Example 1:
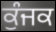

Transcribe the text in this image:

ਕੁੰਜਕ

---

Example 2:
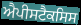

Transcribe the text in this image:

ਐਪੀਸਟੈਕਸਿਸ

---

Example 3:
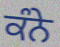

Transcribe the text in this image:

ਕੰਨੇ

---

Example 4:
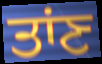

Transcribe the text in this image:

ਤਾਂਣ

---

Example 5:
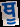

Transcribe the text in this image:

ਥੂ